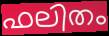
ഫലിതം